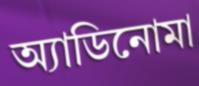
অ্যাডিনোমা